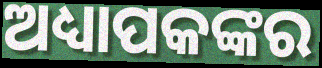
ଅଧ୍ୟାପକଙ୍କର